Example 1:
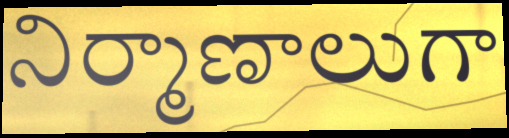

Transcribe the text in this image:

నిర్మాణాలుగా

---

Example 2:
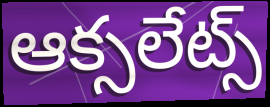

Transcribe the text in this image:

ఆక్సలేట్స్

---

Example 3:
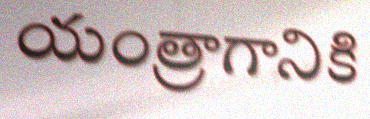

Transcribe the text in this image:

యంత్రాగానికి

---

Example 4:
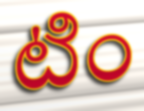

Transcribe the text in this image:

టిం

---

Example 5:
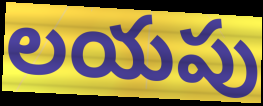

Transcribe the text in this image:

లయపు